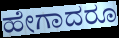
ಹೇಗಾದರೂ